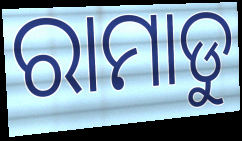
ରାମାଡୁ